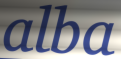
alba